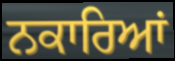
ਨਕਾਰਿਆਂ